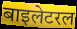
बाइलेटरल